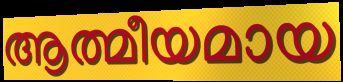
ആത്മീയമായ